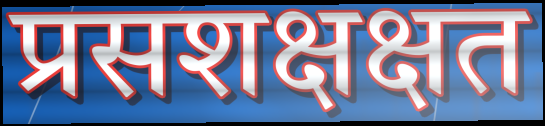
प्रसशक्षक्षत